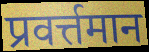
प्रवर्त्तमान